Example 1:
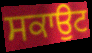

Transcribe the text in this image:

ਸਕਾਉਟ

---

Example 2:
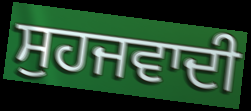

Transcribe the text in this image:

ਸੁਹਜਵਾਦੀ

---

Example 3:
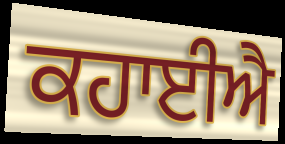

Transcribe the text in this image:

ਕਹਾਈਐ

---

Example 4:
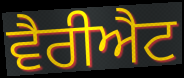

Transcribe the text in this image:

ਵੈਰੀਐਟ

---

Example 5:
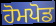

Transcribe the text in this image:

ਹੋਮਪੋਡ